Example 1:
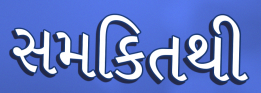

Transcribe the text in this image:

સમકિતથી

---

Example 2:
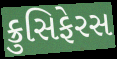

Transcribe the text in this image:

ક્રુસિફેરસ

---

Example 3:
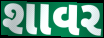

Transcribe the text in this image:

શાવર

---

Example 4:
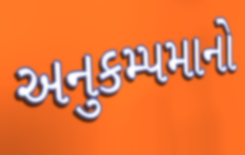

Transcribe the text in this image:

અનુકમ્પમાનો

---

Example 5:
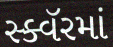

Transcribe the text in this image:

સ્ક્વૅરમાં